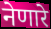
नेणारे